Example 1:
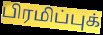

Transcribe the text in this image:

பிரமிப்புக்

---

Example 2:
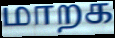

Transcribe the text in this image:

மாறக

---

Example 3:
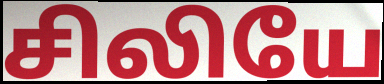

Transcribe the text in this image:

சிலியே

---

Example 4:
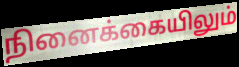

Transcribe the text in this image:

நினைக்கையிலும்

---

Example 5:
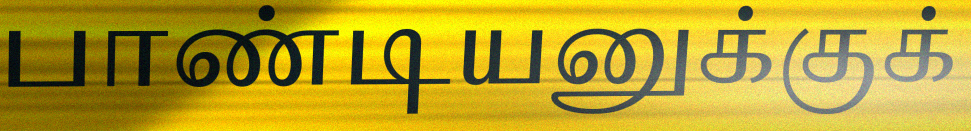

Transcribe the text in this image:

பாண்டியனுக்குக்